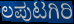
ಲಪುಟಗಿರಿ